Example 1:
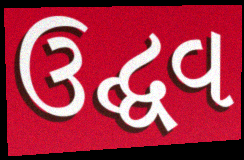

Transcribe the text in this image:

ઉદ્ઘવ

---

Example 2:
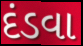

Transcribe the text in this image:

દંડવા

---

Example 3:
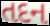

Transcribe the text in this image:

તદન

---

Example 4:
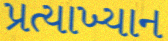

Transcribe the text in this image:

પ્રત્યાખ્યાન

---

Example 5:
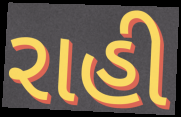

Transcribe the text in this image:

રાહી